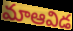
మాఆవిడ